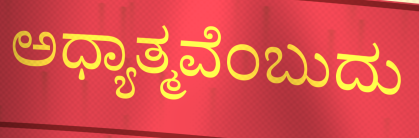
ಅಧ್ಯಾತ್ಮವೆಂಬುದು